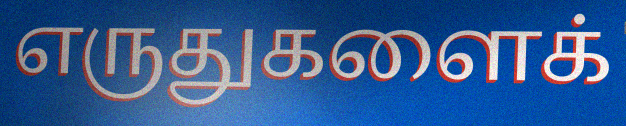
எருதுகளைக்